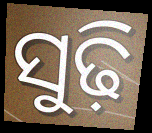
ସୁଢ଼ି